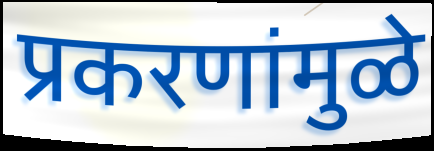
प्रकरणांमुळे